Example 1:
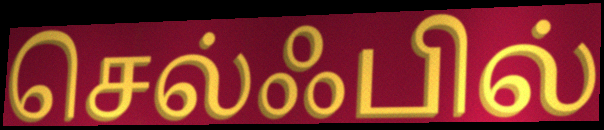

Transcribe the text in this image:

செல்ஃபில்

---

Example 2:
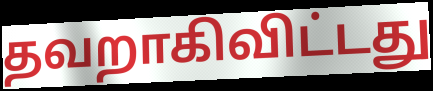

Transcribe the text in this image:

தவறாகிவிட்டது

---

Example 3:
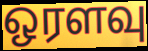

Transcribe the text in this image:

ஒரளவு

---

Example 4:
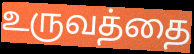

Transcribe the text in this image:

உருவத்தை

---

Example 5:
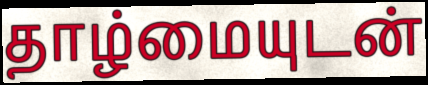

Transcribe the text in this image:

தாழ்மையுடன்